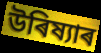
উৰিষ্যাৰ